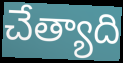
చేత్యాది